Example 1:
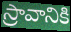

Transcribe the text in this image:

స్రావానికి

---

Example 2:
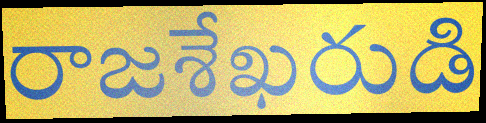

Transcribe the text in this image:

రాజశేఖరుడి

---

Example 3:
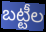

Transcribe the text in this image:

బట్టీల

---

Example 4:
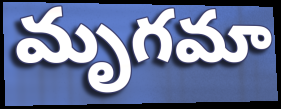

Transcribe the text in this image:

మృగమా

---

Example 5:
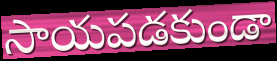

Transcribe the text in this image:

సాయపడకుండా